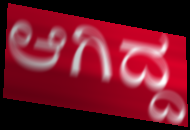
ಆಗಿದ್ದ